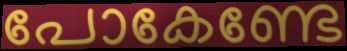
പോകേണ്ടേ